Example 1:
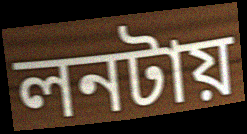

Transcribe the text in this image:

লনটায়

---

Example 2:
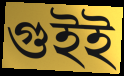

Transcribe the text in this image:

গুইই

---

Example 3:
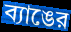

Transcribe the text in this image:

ব্যাঙের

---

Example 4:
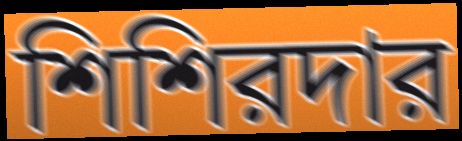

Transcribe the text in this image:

শিশিরদার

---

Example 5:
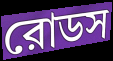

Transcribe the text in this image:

রোডস